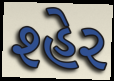
શ્હેર